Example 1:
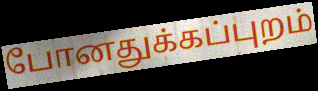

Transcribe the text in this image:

போனதுக்கப்புறம்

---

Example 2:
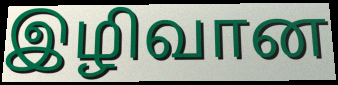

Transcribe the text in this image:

இழிவான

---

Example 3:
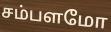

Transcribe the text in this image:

சம்பளமோ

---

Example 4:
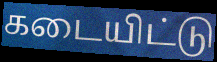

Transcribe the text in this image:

கடையிட்டு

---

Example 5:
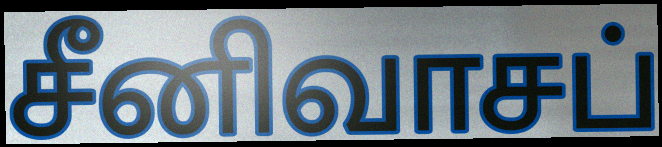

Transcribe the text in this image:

சீனிவாசப்